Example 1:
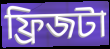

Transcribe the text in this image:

ফ্রিজটা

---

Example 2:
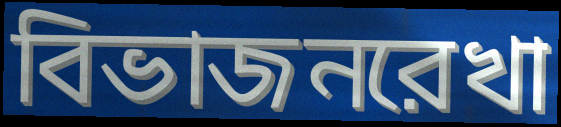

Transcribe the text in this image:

বিভাজনরেখা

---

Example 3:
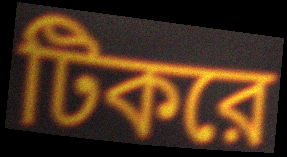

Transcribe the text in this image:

টিকরে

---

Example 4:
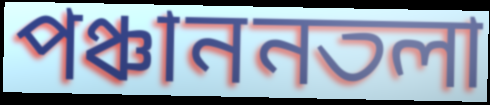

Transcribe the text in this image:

পঞ্চাননতলা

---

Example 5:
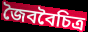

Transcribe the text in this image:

জৈববৈচিত্র